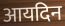
आयदिन